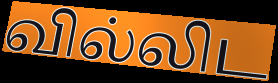
வில்லிட